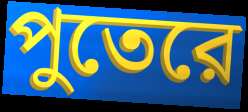
পুতেরে